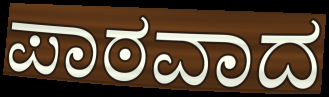
ಪಾಠವಾದ